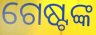
ଗେଷ୍ଟଙ୍କ